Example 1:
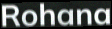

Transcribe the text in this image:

Rohana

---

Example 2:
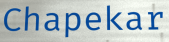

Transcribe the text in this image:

Chapekar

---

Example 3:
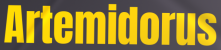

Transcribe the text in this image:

Artemidorus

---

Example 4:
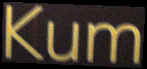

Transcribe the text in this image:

Kum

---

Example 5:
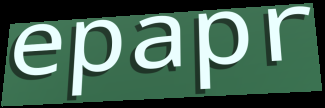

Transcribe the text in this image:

epapr